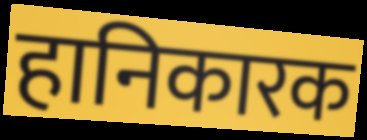
हानिकारक